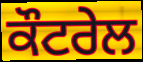
ਕੌਟਰੇਲ